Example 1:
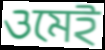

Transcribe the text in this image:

ওমেই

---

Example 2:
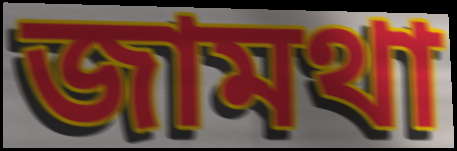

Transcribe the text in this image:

জামথা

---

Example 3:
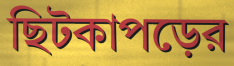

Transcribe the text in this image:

ছিটকাপড়ের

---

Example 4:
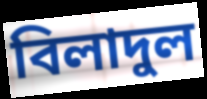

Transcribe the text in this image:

বিলাদুল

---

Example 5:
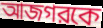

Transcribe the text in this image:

আজগরকে